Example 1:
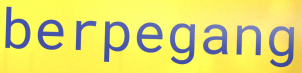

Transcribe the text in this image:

berpegang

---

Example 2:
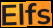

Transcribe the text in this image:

Elfs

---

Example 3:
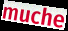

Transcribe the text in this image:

muche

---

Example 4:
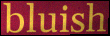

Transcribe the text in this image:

bluish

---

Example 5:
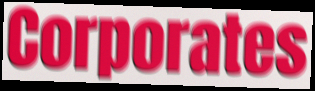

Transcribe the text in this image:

Corporates